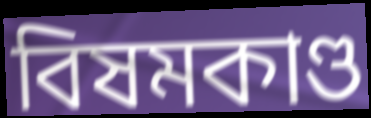
বিষমকাণ্ড